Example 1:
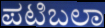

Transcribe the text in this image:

ಪಟಿಬಲಾ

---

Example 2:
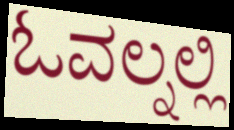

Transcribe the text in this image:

ಓವಲ್ನಲ್ಲಿ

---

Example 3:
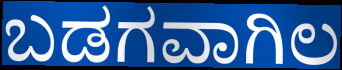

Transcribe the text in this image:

ಬಡಗವಾಗಿಲ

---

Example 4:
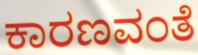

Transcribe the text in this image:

ಕಾರಣವಂತೆ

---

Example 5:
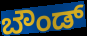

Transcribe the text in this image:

ಬೌಂಡ್